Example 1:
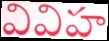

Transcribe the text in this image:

వివిహ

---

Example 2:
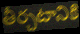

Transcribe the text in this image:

తీర్చటానికి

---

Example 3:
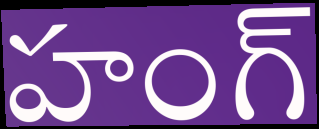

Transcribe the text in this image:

హంగ్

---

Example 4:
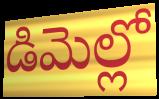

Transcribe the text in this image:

డిమెల్లో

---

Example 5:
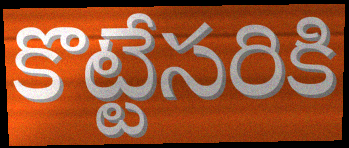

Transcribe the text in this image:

కొట్టేసరికి